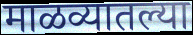
माळव्यातल्या